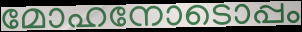
മോഹനോടൊപ്പം